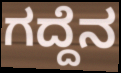
ಗದ್ದೆನ